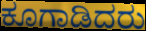
ಕೂಗಾಡಿದರು